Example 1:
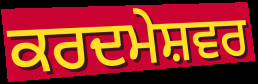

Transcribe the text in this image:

ਕਰਦਮੇਸ਼ਵਰ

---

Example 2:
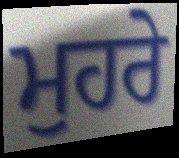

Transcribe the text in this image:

ਮੁਹਰੇ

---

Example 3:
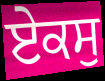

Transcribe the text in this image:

ਏਕਸੁ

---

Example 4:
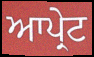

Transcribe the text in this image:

ਆਪ੍ਰੇਟ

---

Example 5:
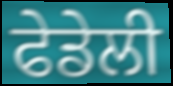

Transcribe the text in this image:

ਫੇਡੇਲੀ